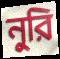
নুরি